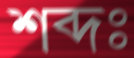
শব্দঃ